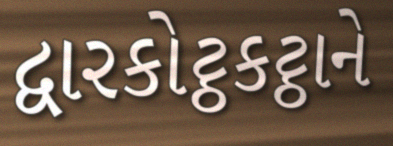
દ્વારકોટ્ઠકટ્ઠાને